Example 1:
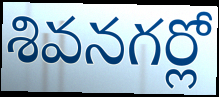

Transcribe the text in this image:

శివనగర్లో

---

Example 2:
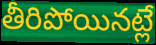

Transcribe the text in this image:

తీరిపోయినట్లే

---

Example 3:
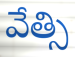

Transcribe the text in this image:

వేత్సి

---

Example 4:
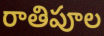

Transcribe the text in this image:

రాతిపూల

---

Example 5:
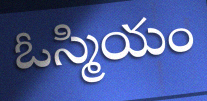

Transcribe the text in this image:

ఓస్మియం